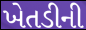
ખેતડીની